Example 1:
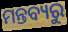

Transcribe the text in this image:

ମନ୍ତବ୍ୟରୁ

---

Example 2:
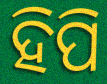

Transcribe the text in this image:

ହିପି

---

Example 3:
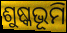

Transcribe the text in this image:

ଶୁଷ୍କଭୂମି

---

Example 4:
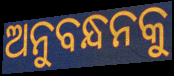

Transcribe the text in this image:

ଅନୁବନ୍ଧନକୁ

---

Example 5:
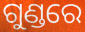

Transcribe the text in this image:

ଗୁଣ୍ଡରେ